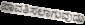
ಪಾವತಿಸಲಾಗುವುದು